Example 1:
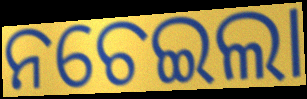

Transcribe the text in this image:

ନଚେଇଲା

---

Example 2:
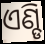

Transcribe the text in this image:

ଏଣ୍ଡି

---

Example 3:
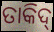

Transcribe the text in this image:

ତାକିଦ୍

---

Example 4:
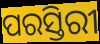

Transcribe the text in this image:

ପରସ୍ତିରୀ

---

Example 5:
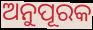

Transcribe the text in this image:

ଅନୁପୂରକ